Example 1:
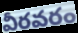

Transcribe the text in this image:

వీరవరం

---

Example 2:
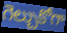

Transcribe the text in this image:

గెల్చుకోగా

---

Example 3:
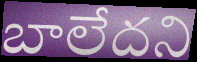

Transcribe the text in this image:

బాలేదని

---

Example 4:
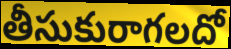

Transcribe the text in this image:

తీసుకురాగలదో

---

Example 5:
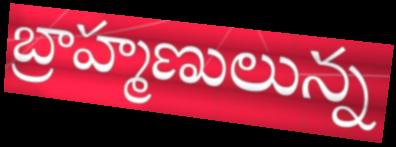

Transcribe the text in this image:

బ్రాహ్మణులున్న